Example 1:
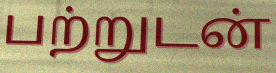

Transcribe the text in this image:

பற்றுடன்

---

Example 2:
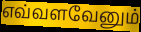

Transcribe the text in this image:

எவ்வளவேனும்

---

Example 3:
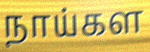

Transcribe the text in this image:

நாய்கள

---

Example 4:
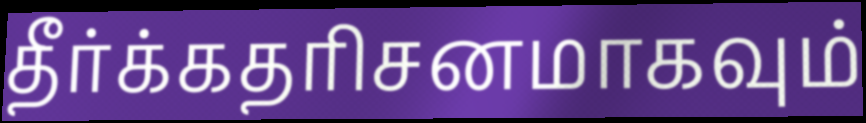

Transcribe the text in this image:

தீர்க்கதரிசனமாகவும்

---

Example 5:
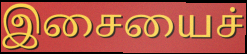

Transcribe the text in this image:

இசையைச்